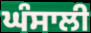
ਘੰਸਾਲੀ